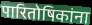
पारितोषिकांना